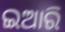
ଇଆରି